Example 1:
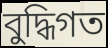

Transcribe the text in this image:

বুদ্ধিগত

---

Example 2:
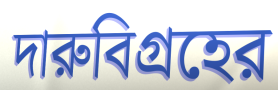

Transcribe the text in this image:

দারুবিগ্রহের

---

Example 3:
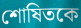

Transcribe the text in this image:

শোষিতকে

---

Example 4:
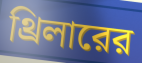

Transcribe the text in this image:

থ্রিলারের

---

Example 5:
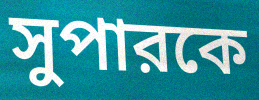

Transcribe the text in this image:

সুপারকে